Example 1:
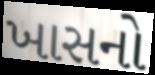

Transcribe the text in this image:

ખાસનો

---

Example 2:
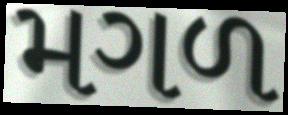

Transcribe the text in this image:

મગળ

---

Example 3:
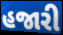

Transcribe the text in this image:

હજારી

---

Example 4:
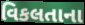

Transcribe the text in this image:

વિકલતાના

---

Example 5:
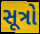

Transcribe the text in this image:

સૂત્રો